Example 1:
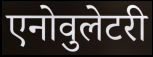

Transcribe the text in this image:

एनोवुलेटरी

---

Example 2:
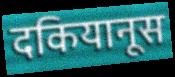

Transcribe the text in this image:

दकियानूस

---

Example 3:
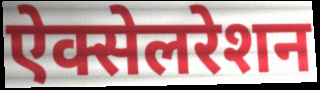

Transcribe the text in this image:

ऐक्सेलरेशन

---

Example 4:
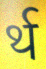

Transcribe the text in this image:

र्थ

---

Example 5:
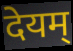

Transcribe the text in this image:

देयम्